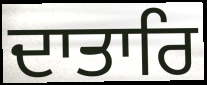
ਦਾਤਾਰਿ